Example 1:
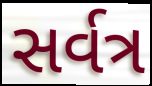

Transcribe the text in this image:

સર્વત્ર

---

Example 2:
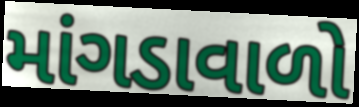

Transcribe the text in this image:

માંગડાવાળો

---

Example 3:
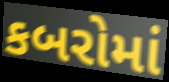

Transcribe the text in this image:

કબરોમાં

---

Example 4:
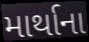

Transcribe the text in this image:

માર્થાના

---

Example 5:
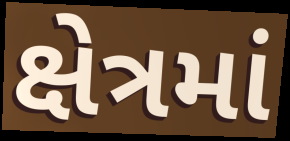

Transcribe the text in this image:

ક્ષેત્રમાં